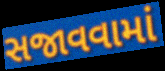
સજાવવામાં